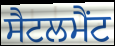
ਸੈਟਲਮੈਂਟ